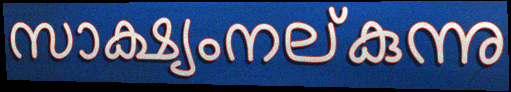
സാക്ഷ്യംനല്കുന്നു